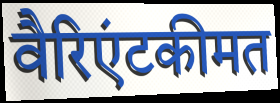
वैरिएंटकीमत